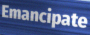
Emancipate